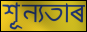
শূন্যতাৰ